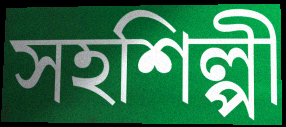
সহশিল্পী